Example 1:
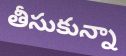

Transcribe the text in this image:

తీసుకున్నా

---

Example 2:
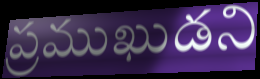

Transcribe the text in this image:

ప్రముఖుడని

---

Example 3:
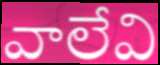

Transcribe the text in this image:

వాలేవి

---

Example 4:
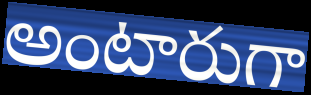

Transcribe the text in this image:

అంటారుగా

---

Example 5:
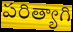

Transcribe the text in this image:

పరిత్యాగి